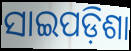
ସାଇପଡ଼ିଶା